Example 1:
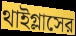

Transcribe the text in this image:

থাইগ্লাসের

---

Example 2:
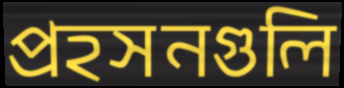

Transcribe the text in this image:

প্রহসনগুলি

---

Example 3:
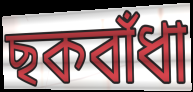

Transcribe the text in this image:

ছকবাঁধা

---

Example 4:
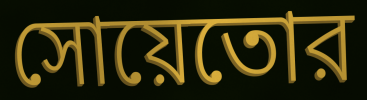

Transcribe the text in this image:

সোয়েতোর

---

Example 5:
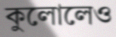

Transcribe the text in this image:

কুলোলেও